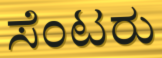
ಸೆಂಟರು